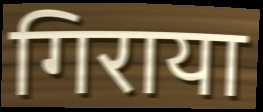
गिराया